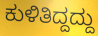
ಕುಳಿತಿದ್ದದ್ದು